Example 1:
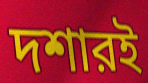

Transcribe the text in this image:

দশারই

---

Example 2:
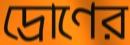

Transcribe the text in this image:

দ্রোণের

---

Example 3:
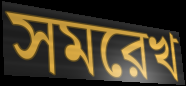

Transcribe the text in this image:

সমরেখ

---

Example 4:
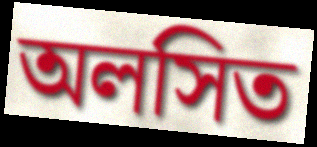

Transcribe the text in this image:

অলসিত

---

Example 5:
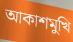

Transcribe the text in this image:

আকাশমুখি